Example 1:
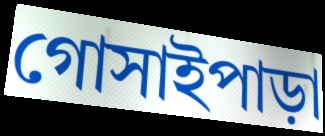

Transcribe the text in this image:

গোসাইপাড়া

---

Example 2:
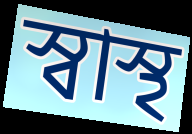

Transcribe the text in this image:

স্বাস্থ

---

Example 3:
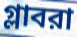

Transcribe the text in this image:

গ্লাবরা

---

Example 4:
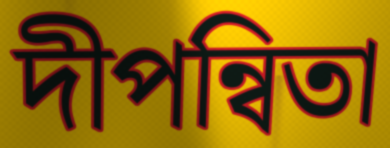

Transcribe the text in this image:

দীপন্বিতা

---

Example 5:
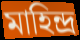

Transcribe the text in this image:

মাহিন্দ্র